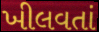
ખીલવતાં